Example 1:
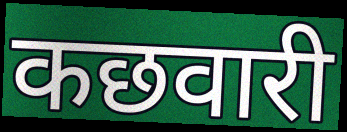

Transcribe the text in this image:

कछवारी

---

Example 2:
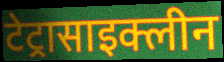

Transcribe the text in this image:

टेट्रासाइक्लीन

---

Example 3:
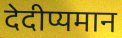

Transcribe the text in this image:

देदीप्यमान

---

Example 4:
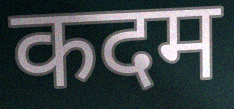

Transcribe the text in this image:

कदम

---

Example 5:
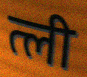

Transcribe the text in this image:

त्ली